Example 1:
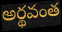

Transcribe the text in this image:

అర్థవంత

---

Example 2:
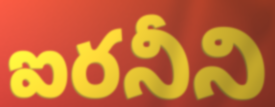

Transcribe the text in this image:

ఐరనీని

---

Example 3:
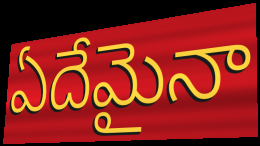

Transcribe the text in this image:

ఏదేమైనా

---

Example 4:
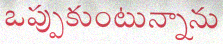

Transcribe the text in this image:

ఒప్పుకుంటున్నాను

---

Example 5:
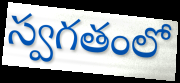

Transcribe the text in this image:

స్వగతంలో